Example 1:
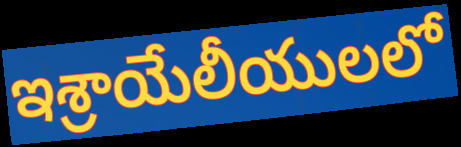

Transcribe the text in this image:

ఇశ్రాయేలీయులలో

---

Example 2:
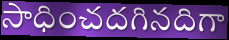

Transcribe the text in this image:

సాధించదగినదిగా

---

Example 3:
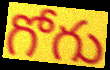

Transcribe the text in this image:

గోగు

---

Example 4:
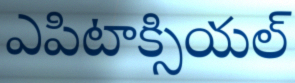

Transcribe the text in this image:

ఎపిటాక్సియల్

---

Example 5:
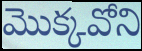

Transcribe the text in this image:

మొక్కవోని